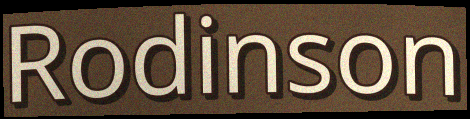
Rodinson